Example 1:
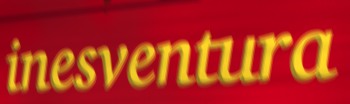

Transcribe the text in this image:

inesventura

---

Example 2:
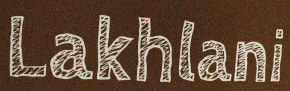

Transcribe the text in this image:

Lakhlani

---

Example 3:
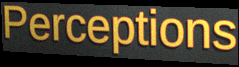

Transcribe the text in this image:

Perceptions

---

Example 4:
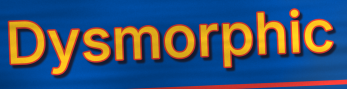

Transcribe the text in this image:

Dysmorphic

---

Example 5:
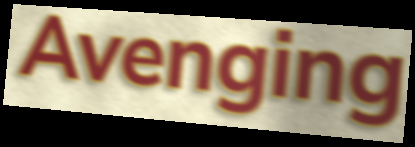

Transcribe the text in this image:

Avenging